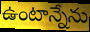
ఉంటాన్నేను